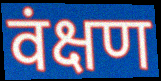
वंक्षण